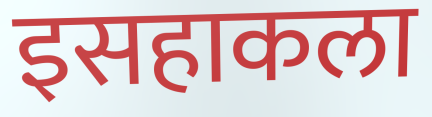
इसहाकला